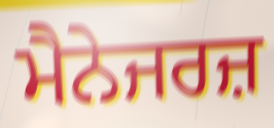
ਮੈਨੇਜਰਜ਼